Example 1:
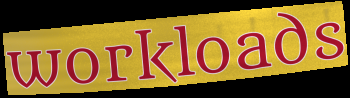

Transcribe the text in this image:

workloads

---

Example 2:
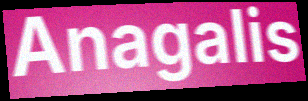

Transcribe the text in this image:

Anagalis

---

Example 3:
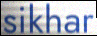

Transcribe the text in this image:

sikhar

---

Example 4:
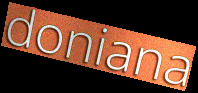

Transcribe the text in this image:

doniana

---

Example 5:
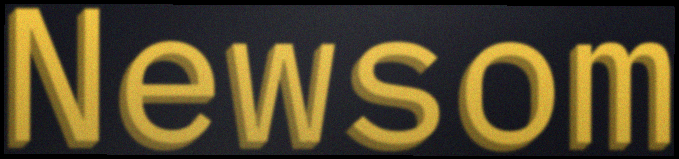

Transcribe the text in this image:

Newsom